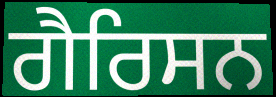
ਗੈਰਿਸਨ